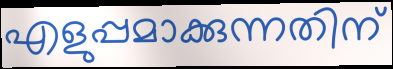
എളുപ്പമാക്കുന്നതിന്